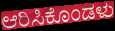
ಆರಿಸಿಕೊಂಡಳು